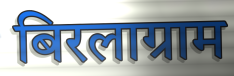
बिरलाग्राम